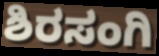
ಶಿರಸಂಗಿ